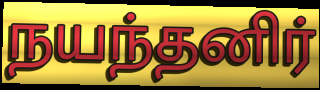
நயந்தனிர்